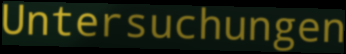
Untersuchungen